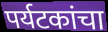
पर्यटकांचा